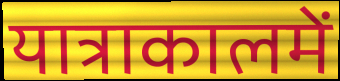
यात्राकालमें